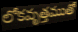
లోకవృత్తముతో